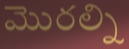
మొరల్ని